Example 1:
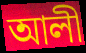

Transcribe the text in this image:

আলী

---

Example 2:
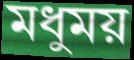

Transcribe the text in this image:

মধুময়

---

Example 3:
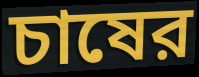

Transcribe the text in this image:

চাষের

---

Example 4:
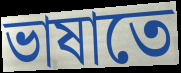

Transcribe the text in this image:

ভাষাতে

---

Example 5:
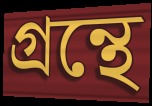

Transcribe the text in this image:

গ্রন্থে